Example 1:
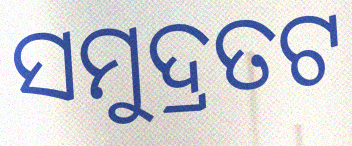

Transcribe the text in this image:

ସମୁଦ୍ରତଟ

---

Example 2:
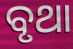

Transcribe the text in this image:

ବୃଥା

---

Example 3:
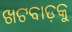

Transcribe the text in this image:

ଖଟବାଡ଼କୁ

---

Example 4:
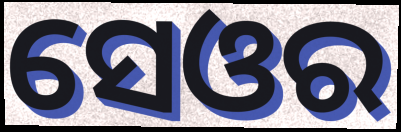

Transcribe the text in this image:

ସେଓର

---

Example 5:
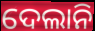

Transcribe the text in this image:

ଦେଲାନି